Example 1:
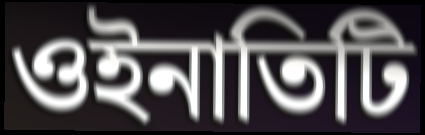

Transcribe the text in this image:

ওইনাতিটি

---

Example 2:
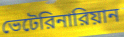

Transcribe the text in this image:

ভেটেরিনারিয়ান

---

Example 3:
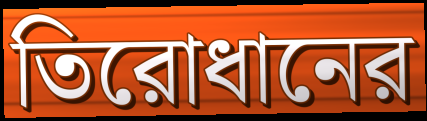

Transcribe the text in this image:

তিরোধানের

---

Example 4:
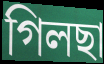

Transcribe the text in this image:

গিলছা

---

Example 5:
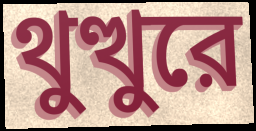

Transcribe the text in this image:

থুত্থুরে